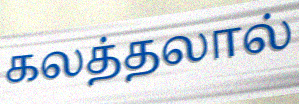
கலத்தலால்